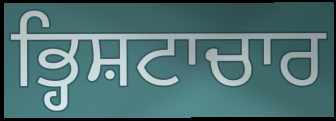
ਭ੍ਹਿਸ਼ਟਾਚਾਰ